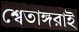
শ্বেতাঙ্গরাই